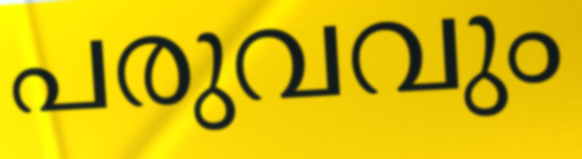
പരുവവും